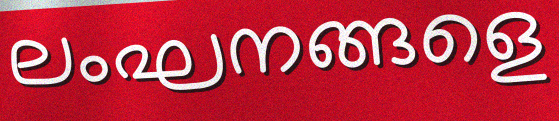
ലംഘനങ്ങളെ